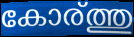
കോര്ത്തു